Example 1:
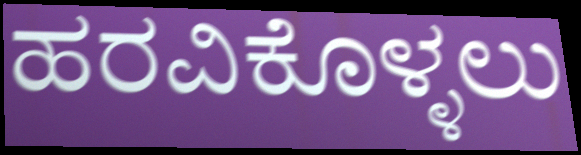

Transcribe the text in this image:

ಹರವಿಕೊಳ್ಳಲು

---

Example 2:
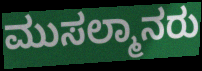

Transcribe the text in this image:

ಮುಸಲ್ಮಾನರು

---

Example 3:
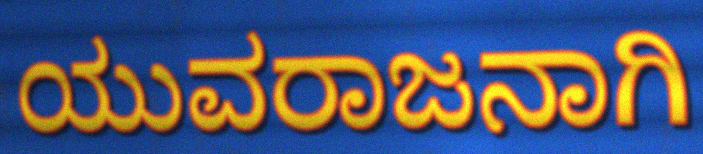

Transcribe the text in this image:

ಯುವರಾಜನಾಗಿ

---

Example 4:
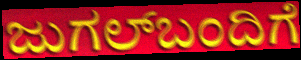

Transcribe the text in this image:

ಜುಗಲ್‌ಬಂದಿಗೆ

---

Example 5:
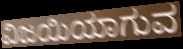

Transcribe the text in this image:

ವಿಜಯಿಯಾಗುವ